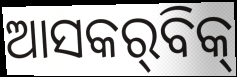
ଆସକର୍‌ବିକ୍